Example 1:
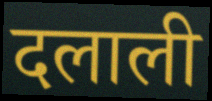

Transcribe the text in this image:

दलाली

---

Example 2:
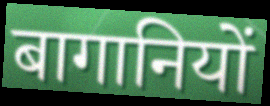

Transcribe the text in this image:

बागानियों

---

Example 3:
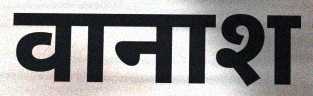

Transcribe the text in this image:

वानाश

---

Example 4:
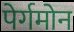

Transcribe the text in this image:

पेर्गमोन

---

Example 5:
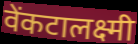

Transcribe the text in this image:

वेंकटालक्ष्मी